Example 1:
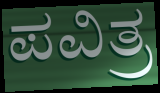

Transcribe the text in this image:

ಪವಿತ್ರ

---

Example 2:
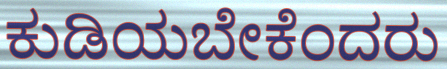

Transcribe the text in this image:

ಕುಡಿಯಬೇಕೆಂದರು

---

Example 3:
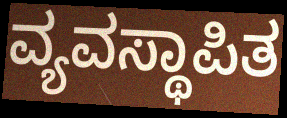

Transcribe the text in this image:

ವ್ಯವಸ್ಥಾಪಿತ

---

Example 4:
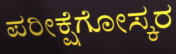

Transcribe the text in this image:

ಪರೀಕ್ಷೆಗೋಸ್ಕರ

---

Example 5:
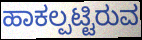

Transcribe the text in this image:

ಹಾಕಲ್ಪಟ್ಟಿರುವ